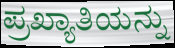
ಪ್ರಖ್ಯಾತಿಯನ್ನು